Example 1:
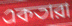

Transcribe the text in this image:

একতারা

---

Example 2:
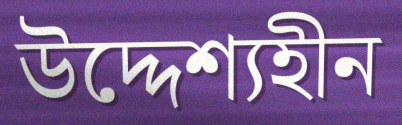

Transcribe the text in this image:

উদ্দেশ্যহীন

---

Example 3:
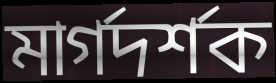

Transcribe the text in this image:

মার্গদর্শক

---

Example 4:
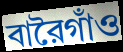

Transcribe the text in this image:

বারৈগাঁও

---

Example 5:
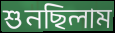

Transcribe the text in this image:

শুনছিলাম